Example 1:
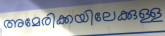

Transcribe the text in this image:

അമേരിക്കയിലേക്കുള്ള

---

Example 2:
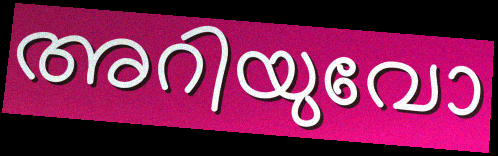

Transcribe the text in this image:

അറിയുവോ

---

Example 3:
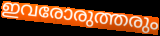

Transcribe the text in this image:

ഇവരോരുത്തരും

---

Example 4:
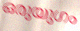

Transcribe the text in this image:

ഒരുയുഗം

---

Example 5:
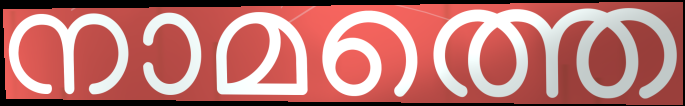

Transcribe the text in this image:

നാമത്തെ